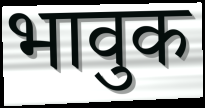
भावुक